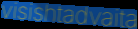
visishtadvaita